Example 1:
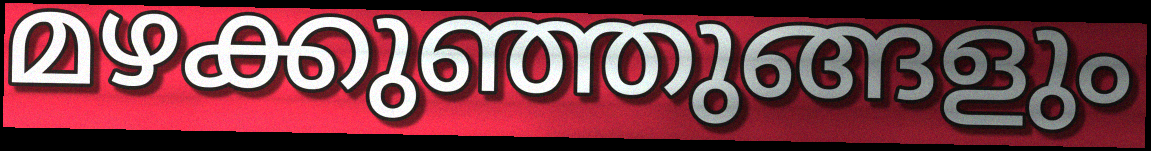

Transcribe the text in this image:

മഴക്കുഞ്ഞുങ്ങളും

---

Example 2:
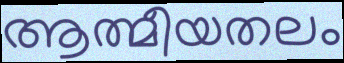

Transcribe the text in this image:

ആത്മീയതലം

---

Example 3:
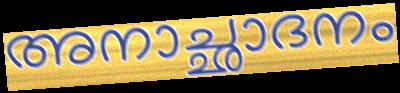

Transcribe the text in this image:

അനാച്ഛാദനം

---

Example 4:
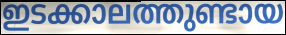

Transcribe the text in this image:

ഇടക്കാലത്തുണ്ടായ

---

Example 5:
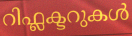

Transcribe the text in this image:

റിഫ്ലക്ടറുകൾ